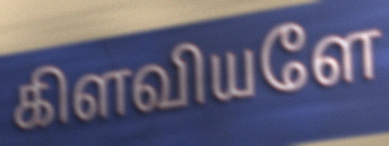
கிளவியளே